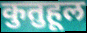
कुतुहूल